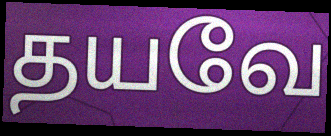
தயவே